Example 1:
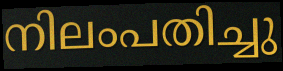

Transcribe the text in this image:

നിലംപതിച്ചു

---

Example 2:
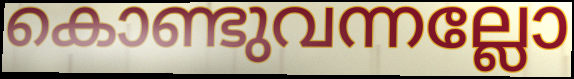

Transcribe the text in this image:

കൊണ്ടുവന്നല്ലോ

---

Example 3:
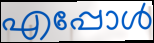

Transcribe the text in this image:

എപ്പോൾ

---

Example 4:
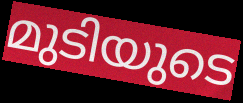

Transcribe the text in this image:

മുടിയുടെ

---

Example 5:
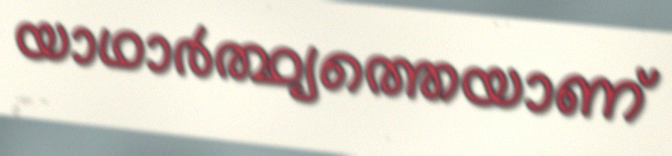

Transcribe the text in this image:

യാഥാർത്ഥ്യത്തെയാണ്